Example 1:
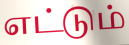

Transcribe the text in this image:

எட்டும்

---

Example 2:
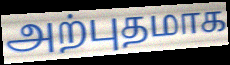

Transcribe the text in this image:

அற்புதமாக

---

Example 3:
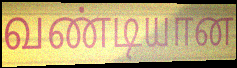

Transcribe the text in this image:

வண்டியான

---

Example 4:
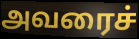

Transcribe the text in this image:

அவரைச்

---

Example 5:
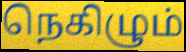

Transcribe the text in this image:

நெகிழும்